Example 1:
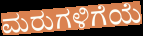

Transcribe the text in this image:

ಮರುಗಳಿಗೆಯೆ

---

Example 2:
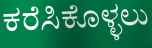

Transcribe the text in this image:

ಕರೆಸಿಕೊಳ್ಳಲು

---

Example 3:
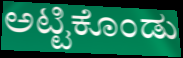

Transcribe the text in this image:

ಅಟ್ಟಿಕೊಂಡು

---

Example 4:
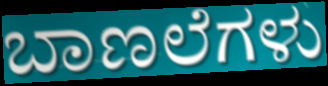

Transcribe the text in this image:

ಬಾಣಲೆಗಳು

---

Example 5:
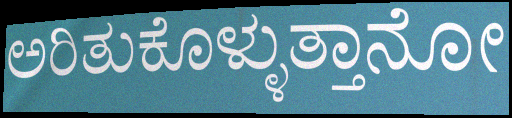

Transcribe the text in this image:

ಅರಿತುಕೊಳ್ಳುತ್ತಾನೋ